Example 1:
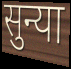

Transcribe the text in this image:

सुन्या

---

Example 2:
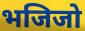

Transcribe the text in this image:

भजिजो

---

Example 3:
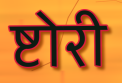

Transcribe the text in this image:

ष्टोरी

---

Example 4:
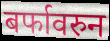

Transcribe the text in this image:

बर्फावरुन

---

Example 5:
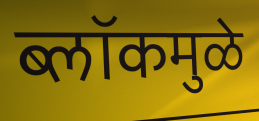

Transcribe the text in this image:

ब्लॉकमुळे